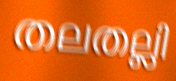
തലതല്ലി